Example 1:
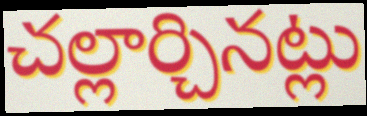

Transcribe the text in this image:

చల్లార్చినట్లు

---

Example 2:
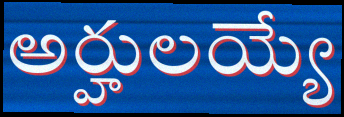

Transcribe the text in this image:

అర్హులయ్యే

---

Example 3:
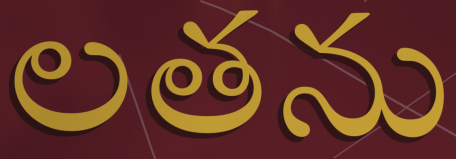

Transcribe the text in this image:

లతను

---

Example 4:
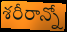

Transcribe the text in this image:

శరీరాన్నో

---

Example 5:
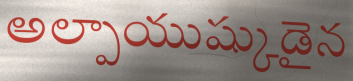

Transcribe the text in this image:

అల్పాయుష్కుడైన